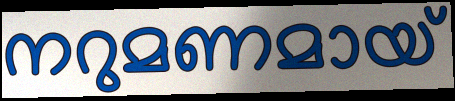
നറുമണമായ്